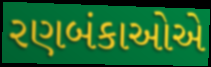
રણબંકાઓએ